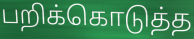
பறிக்கொடுத்த